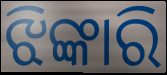
ଝିଙ୍କାରି